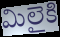
మిలైకి